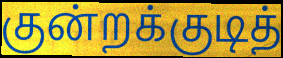
குன்றக்குடித்